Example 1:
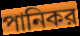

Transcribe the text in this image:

পানিকর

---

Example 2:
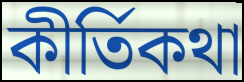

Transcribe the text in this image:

কীর্তিকথা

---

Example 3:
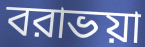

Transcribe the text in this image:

বরাভয়া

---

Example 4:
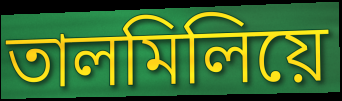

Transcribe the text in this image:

তালমিলিয়ে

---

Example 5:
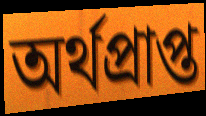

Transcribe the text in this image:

অর্থপ্রাপ্ত